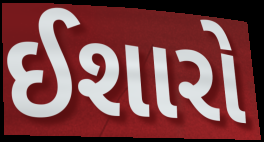
ઈશારો